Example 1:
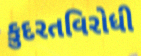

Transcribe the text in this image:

કુદરતવિરોધી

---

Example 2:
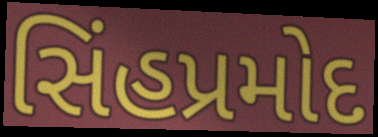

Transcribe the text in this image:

સિંહપ્રમોદ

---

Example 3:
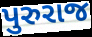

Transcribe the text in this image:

પુરુરાજ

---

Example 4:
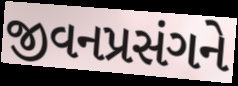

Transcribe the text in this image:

જીવનપ્રસંગને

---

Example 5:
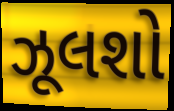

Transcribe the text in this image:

ઝૂલશો